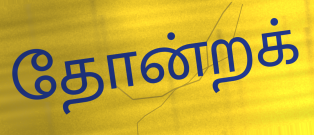
தோன்றக்